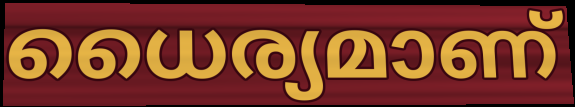
ധൈര്യമാണ്